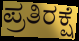
ಪ್ರತಿರಕ್ಷೆ